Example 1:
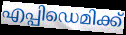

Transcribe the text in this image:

എപ്പിഡെമിക്ക്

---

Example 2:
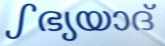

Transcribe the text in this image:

ഽഭ്യയാദ്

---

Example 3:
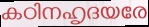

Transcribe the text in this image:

കഠിനഹൃദയരേ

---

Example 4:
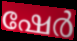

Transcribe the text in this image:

ഷേർ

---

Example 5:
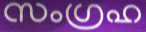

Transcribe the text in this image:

സംഗ്രഹ